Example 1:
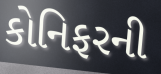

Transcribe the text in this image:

કોનિફરની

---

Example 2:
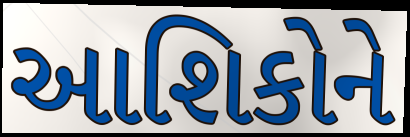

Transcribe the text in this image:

આશિકોને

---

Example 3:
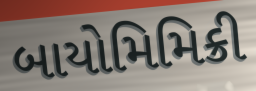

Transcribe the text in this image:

બાયોમિમિક્રી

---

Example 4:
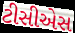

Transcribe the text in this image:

ટીસીએસ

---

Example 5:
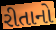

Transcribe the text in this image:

રીતાનો